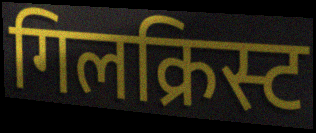
गिलक्रिस्ट